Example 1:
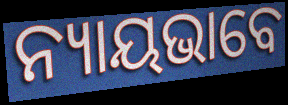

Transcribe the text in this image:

ନ୍ୟାୟଭାବେ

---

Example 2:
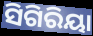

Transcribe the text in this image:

ସିଗିରିୟା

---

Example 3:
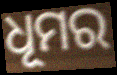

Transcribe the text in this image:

ଧୂମର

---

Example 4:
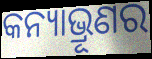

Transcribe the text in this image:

କନ୍ୟାଭ୍ରୂଣର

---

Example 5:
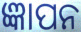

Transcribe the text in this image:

ଜ୍ଞାପନ